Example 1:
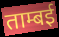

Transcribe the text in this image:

ताम्बई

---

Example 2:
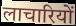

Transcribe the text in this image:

लाचारियों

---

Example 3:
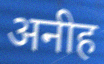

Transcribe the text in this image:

अनीह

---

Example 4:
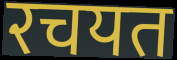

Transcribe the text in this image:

रचयत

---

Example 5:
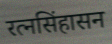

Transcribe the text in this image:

रत्नसिंहासन